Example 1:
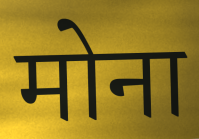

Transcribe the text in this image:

मोना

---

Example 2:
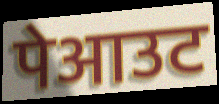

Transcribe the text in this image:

पेआउट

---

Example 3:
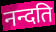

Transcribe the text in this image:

नन्दति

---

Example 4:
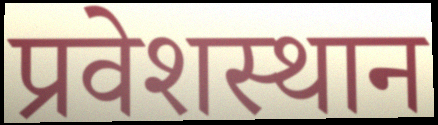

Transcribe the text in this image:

प्रवेशस्थान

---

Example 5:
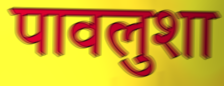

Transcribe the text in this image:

पावलुशा